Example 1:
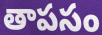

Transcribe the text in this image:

తాపసం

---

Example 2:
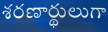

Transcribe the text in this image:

శరణార్థులుగా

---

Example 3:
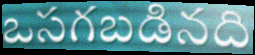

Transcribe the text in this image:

ఒసగబడినది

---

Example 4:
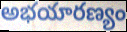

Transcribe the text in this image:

అభయారణ్యం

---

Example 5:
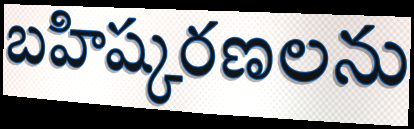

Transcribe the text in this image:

బహిష్కరణలను